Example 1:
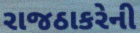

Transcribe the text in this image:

રાજઠાકરેની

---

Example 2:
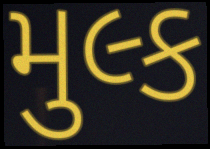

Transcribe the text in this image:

મુલ્ક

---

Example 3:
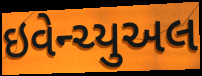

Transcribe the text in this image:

ઇવેન્ચ્યુઅલ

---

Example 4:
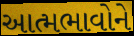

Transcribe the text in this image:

આત્મભાવોને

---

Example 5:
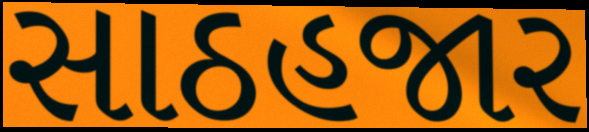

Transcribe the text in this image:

સાઠહજાર